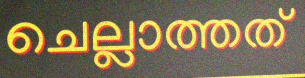
ചെല്ലാത്തത്